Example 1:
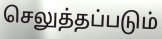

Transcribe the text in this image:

செலுத்தப்படும்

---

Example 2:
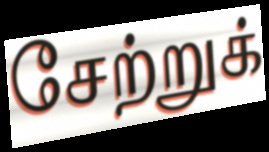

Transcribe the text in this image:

சேற்றுக்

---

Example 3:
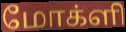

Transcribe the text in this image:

மோக்ளி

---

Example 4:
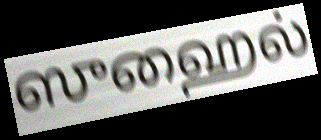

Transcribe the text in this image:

ஸுஹைல்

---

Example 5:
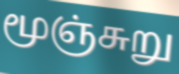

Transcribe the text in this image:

மூஞ்சுறு